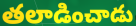
తలాడించాడు